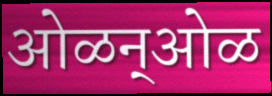
ओळन्ओळ